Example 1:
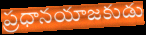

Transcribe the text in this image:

ప్రధానయాజకుడు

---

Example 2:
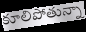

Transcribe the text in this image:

కూలిపోతున్నా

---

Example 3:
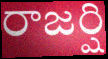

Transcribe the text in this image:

రాజర్షి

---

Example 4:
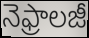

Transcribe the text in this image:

నెఫ్రాలజీ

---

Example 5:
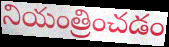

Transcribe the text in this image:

నియంత్రించడం